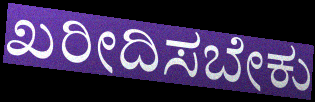
ಖರೀದಿಸಬೇಕು